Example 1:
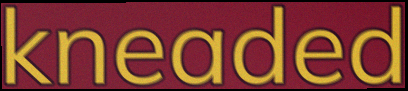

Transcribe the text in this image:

kneaded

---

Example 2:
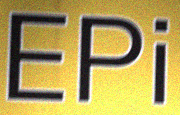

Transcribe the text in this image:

EPi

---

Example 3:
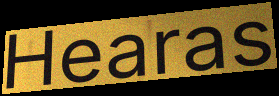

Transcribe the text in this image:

Hearas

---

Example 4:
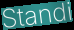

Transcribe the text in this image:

Standi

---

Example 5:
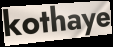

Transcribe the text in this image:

kothaye